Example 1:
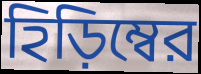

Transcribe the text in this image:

হিড়িম্বের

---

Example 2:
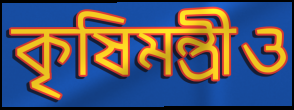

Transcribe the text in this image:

কৃষিমন্ত্রীও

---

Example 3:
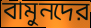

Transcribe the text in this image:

বামুনদের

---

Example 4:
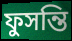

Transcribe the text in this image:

ফুসন্তি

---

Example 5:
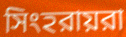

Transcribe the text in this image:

সিংহরায়রা